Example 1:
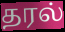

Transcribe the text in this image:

தரல்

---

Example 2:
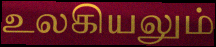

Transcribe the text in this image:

உலகியலும்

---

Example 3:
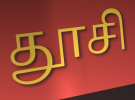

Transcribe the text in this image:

தூசி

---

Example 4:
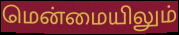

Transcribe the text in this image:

மென்மையிலும்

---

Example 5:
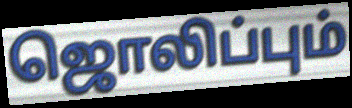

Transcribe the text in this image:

ஜொலிப்பும்